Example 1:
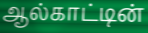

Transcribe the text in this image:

ஆல்காட்டின்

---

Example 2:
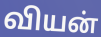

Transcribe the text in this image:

வியன்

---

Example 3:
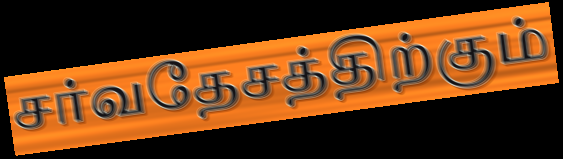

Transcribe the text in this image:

சர்வதேசத்திற்கும்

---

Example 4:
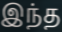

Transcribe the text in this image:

இந்த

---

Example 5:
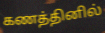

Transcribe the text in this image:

கணத்தினில்